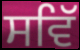
ਸਵਿੱ